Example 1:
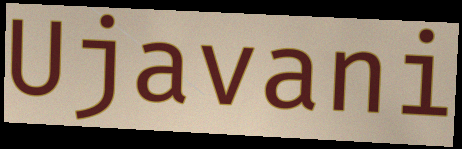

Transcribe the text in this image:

Ujavani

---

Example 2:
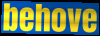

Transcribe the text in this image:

behove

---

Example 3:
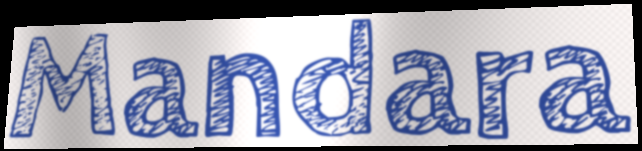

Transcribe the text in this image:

Mandara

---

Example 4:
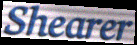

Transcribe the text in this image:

Shearer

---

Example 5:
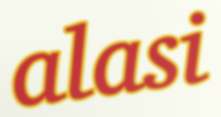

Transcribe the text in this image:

alasi